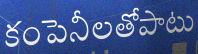
కంపెనీలతోపాటు